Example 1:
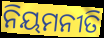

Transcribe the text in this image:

ନିୟମନୀତି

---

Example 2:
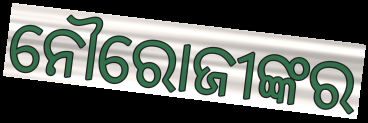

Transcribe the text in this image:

ନୌରୋଜୀଙ୍କର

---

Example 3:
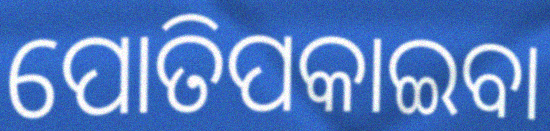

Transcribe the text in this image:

ପୋତିପକାଇବା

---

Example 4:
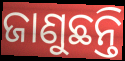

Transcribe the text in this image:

ଜାଣୁଛନ୍ତି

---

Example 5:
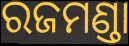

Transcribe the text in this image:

ରଜମଣ୍ଡା